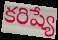
కరిష్యే